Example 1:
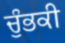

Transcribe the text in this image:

ਚੁੰਭਕੀ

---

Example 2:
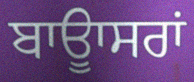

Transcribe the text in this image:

ਬਾਊਾਸਰਾਂ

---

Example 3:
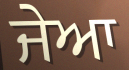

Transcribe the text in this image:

ਜੇਆ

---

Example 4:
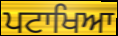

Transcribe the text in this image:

ਪਟਾਖਿਆ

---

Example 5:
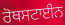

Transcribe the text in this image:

ਰੋਥਸਟਾਈਨ